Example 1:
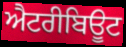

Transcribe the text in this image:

ਐਟਰੀਬਿਊਟ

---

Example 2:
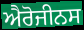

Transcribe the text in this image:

ਐਰੋਜੀਨਸ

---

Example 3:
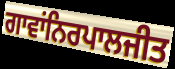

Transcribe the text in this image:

ਗਾਵਾਂਨਿਰਪਾਲਜੀਤ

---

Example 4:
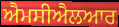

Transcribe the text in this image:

ਐਮਸੀਐਲਆਰ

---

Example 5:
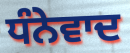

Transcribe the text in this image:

ਧੰਨੇਵਾਦ